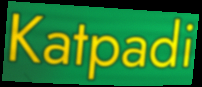
Katpadi